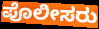
ಪೊಲೀಸರು